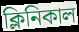
ক্লিনিকাল